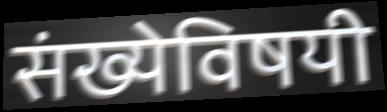
संख्येविषयी